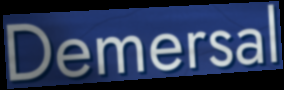
Demersal